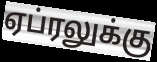
ஏப்ரலுக்கு